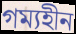
গম্যহীন